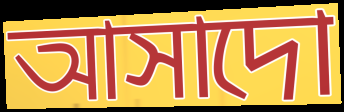
আসাদো